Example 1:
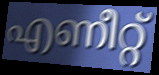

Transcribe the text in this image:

എണീറ്റ്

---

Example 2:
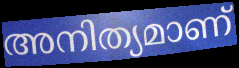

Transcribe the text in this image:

അനിത്യമാണ്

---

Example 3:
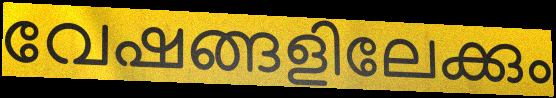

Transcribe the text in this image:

വേഷങ്ങളിലേക്കും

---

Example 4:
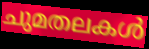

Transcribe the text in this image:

ചുമതലകൾ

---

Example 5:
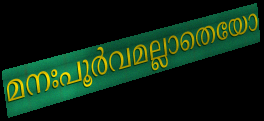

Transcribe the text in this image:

മനഃപൂർവമല്ലാതെയോ